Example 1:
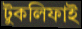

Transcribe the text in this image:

টুকলিফাই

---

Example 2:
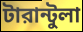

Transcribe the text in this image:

টারান্টুলা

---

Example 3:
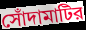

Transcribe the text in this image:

সোঁদামাটির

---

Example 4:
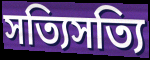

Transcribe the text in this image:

সত্যিসত্যি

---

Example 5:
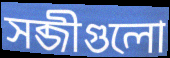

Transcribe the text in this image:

সব্জীগুলো